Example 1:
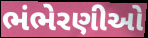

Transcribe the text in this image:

ભંભેરણીઓ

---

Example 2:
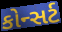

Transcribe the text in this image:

કોન્સર્ટ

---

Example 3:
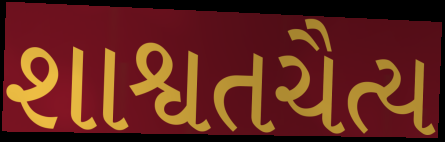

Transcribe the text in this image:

શાશ્વતચૈત્ય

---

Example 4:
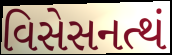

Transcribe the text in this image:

વિસેસનત્થં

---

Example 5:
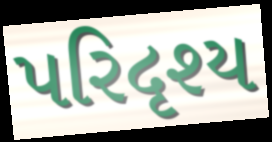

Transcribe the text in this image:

પરિદૃશ્ય